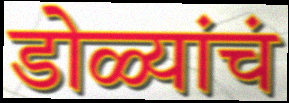
डोळ्यांचं